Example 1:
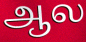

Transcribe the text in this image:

ஆல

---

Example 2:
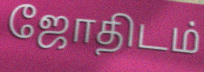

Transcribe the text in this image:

ஜோதிடம்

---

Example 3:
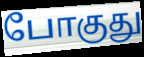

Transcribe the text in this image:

போகுது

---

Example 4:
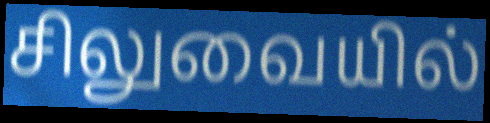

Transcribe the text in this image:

சிலுவையில்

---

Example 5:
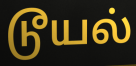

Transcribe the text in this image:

டூயல்